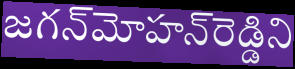
జగన్‌మోహన్‌రెడ్డిని